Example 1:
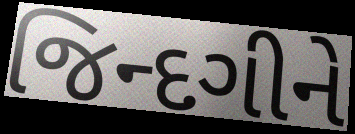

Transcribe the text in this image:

જિન્દગીને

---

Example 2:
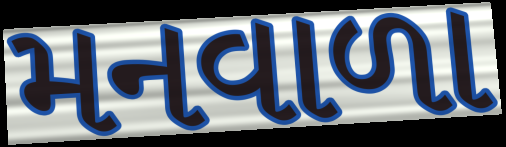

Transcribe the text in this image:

મનવાળા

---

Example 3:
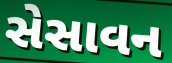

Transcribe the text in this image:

સેસાવન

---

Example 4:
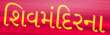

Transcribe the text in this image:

શિવમંદિરના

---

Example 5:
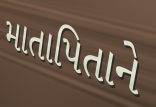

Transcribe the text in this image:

માતાપિતાને